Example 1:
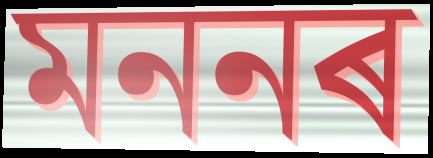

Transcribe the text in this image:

মননৰ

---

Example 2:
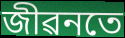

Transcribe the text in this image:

জীৱনতে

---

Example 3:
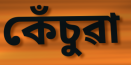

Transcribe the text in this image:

কেঁচুৱা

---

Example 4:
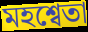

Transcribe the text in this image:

মহশ্বেতা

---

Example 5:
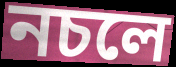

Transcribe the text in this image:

নচলে